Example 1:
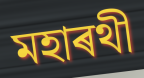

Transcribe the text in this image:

মহাৰথী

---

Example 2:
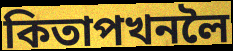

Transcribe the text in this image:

কিতাপখনলৈ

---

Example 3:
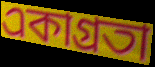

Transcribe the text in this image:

একাগ্ৰতা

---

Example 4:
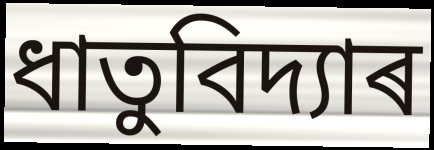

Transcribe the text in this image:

ধাতুবিদ্যাৰ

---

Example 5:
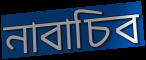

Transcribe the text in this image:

নাবাচিব